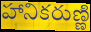
హానికరుణ్ణి